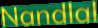
Nandlal